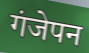
गंजेपन